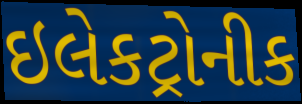
ઇલેકટ્રોનીક